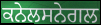
ਕਨੇਲਸਨੇਗਲ